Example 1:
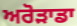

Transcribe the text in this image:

ਅਰੋੜਾਡਾ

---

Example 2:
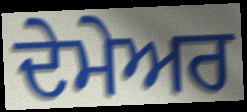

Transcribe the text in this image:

ਦੇਮੇਅਰ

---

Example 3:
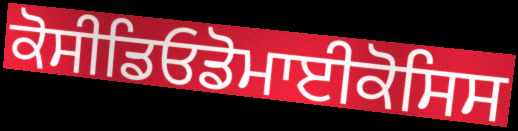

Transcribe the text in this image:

ਕੋਸੀਡਿਓਡੋਮਾਈਕੋਸਿਸ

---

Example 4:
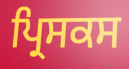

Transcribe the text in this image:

ਪ੍ਰਿਸਕਸ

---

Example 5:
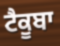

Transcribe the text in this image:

ਟੈਕੂਬਾ